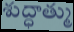
శుద్ధాత్ము